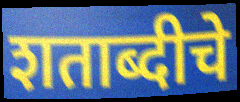
शताब्दीचे